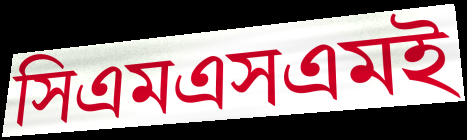
সিএমএসএমই